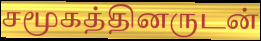
சமூகத்தினருடன்